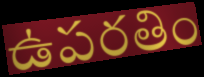
ఉపరతిం